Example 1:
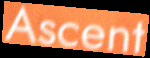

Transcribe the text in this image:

Ascent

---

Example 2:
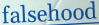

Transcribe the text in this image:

falsehood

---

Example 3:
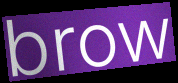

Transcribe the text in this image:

brow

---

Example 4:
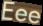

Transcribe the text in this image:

Eee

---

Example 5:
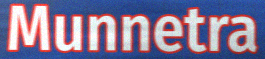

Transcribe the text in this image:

Munnetra